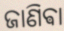
ଜାଣିଵା